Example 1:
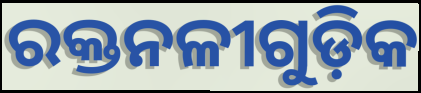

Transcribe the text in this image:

ରକ୍ତନଳୀଗୁଡ଼ିକ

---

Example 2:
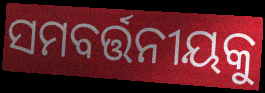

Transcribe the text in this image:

ସମବର୍ତ୍ତନୀୟକୁ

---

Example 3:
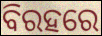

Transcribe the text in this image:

ବିରହରେ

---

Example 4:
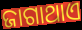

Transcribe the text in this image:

ଜାଗାଥାଏ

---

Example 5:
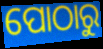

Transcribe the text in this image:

ପୋଠାରୁ